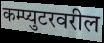
कम्प्युटरवरील